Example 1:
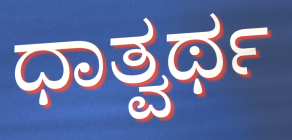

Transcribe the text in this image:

ಧಾತ್ವರ್ಥ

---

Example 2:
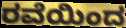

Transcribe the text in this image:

ರವೆಯಿಂದ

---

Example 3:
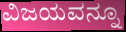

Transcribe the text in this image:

ವಿಜಯವನ್ನೂ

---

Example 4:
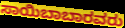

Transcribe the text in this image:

ಸಾಯಿಬಾಬಾರವರು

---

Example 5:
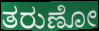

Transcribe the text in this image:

ತರುಣೋ